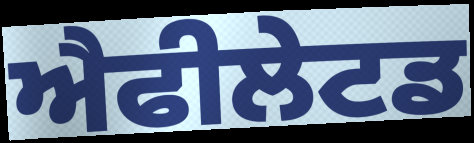
ਐਫੀਲੇਟਡ